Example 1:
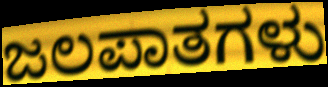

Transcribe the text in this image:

ಜಲಪಾತಗಳು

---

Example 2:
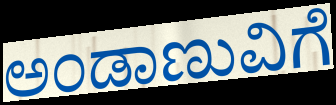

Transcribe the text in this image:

ಅಂಡಾಣುವಿಗೆ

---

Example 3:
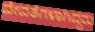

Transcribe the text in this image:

ದೇವತೆಗಳಾಗಿದ್ದರು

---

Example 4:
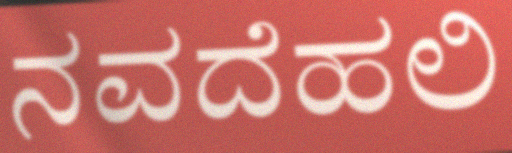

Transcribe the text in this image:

ನವದೆಹಲಿ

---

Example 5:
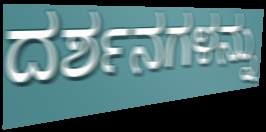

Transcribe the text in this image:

ದರ್ಶನಗಳನ್ನು